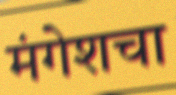
मंगेशचा